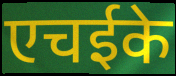
एचईके